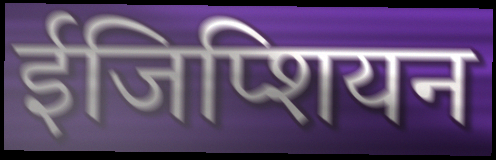
ईजिप्शियन